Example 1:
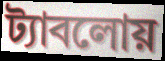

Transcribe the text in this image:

ট্যাবলোয়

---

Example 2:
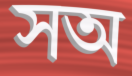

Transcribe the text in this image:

সঅ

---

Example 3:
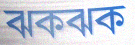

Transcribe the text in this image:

ঝকঝক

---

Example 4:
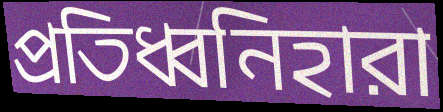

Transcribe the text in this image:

প্রতিধ্বনিহারা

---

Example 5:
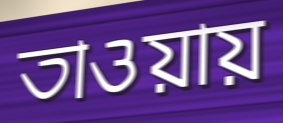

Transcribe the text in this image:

তাওয়ায়